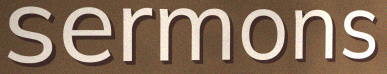
sermons